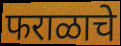
फराळाचे